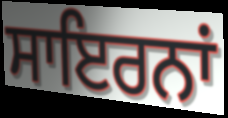
ਸਾਇਰਨਾਂ